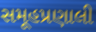
સમૂહપ્રણાલી